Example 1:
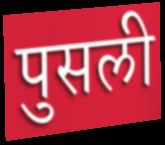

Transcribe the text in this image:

पुसली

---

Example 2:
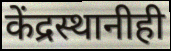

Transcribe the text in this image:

केंद्रस्थानीही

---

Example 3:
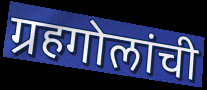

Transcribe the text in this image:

ग्रहगोलांची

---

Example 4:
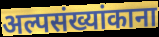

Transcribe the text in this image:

अल्पसंख्यांकाना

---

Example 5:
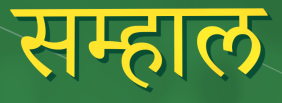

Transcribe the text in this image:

सम्हाल